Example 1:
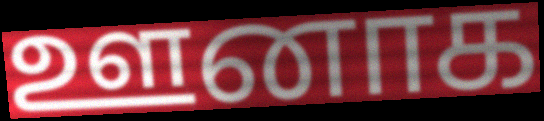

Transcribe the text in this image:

ஊனாக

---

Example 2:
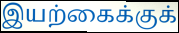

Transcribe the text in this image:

இயற்கைக்குக்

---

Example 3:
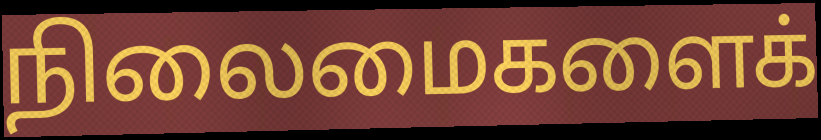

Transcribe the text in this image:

நிலைமைகளைக்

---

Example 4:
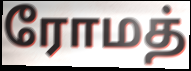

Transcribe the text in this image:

ரோமத்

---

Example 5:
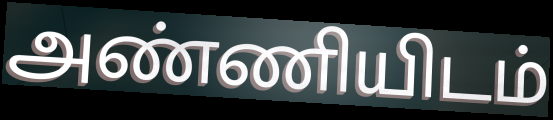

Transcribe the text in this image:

அண்ணியிடம்